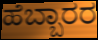
ಹೆಬ್ಬಾರರ